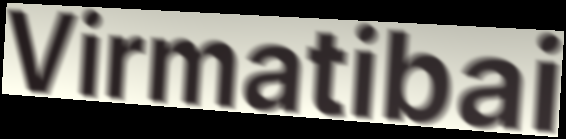
Virmatibai